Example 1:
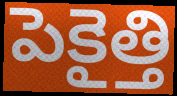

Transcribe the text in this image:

పెకైత్తి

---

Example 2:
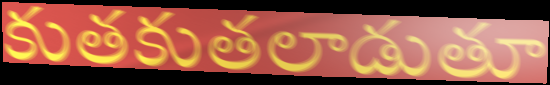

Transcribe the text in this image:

కుతకుతలాడుతూ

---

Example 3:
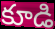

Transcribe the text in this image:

కూడి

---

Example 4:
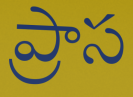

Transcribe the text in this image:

ప్రాస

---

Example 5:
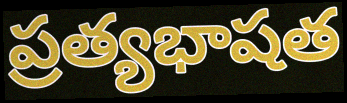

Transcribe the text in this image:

ప్రత్యభాషత